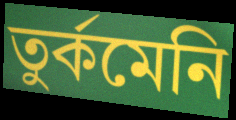
তুর্কমেনি